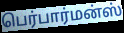
பெர்பார்மன்ஸ்